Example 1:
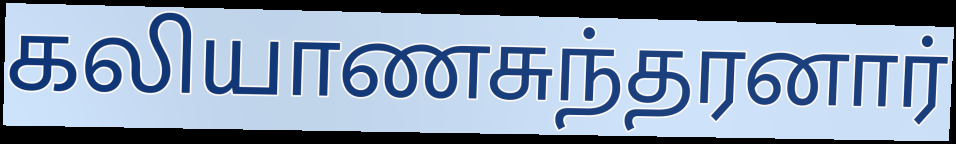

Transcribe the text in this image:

கலியாணசுந்தரனார்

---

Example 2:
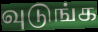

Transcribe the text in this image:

வுடுங்க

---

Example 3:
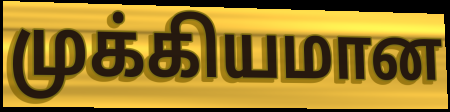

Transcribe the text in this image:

முக்கியமான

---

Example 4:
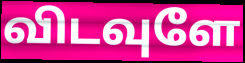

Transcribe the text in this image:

விடவுளே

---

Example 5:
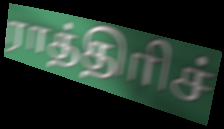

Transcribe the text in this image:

ராத்திரிச்